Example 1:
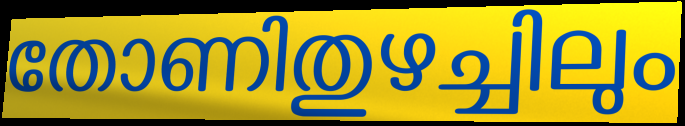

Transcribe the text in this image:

തോണിതുഴച്ചിലും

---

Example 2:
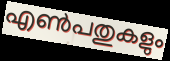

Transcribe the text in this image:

എൺപതുകളും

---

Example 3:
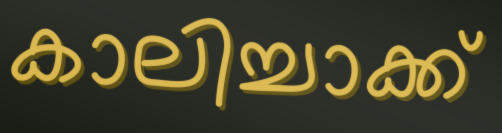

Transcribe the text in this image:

കാലിച്ചാക്ക്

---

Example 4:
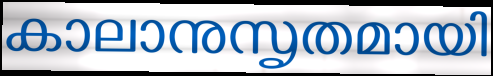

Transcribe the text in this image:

കാലാനുസൃതമായി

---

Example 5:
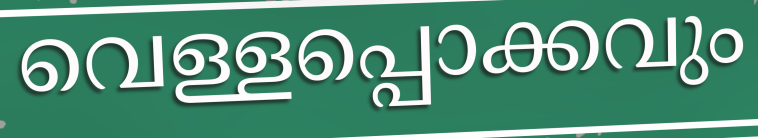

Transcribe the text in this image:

വെള്ളപ്പൊക്കവും